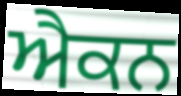
ਐਕਨ